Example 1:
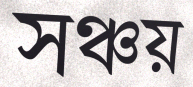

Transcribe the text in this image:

সঞ্চয়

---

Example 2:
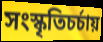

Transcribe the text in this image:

সংস্কৃতিচর্চায়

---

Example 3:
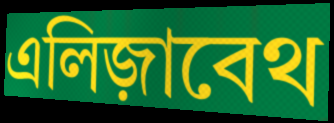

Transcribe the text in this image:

এলিজ়াবেথ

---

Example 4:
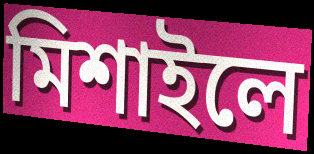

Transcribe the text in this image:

মিশাইলে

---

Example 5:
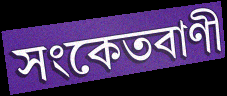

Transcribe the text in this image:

সংকেতবাণী